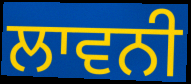
ਲਾਵਨੀ